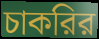
চাকরির